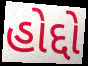
હોદ્દો